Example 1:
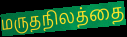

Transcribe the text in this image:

மருதநிலத்தை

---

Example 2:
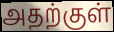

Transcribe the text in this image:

அதற்குள்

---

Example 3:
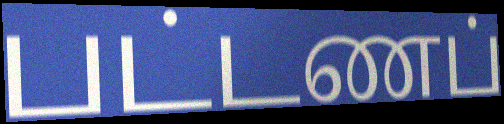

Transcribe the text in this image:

பட்டணப்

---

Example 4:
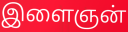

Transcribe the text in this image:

இளைஞன்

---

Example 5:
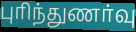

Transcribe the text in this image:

புரிந்துணர்வு